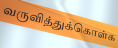
வருவித்துக்கொள்க